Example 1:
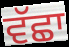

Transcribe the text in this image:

ਵੱਛਾ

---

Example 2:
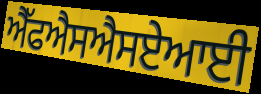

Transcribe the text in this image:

ਐੱਫਐਸਐਸਏਆਈ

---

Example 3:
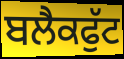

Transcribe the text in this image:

ਬਲੈਕਫੁੱਟ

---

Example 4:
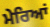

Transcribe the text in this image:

ਮੇਰਿਆਂ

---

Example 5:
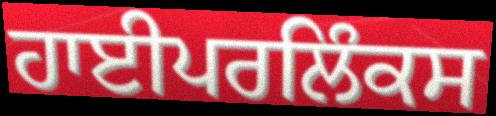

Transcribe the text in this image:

ਹਾਈਪਰਲਿੰਕਸ